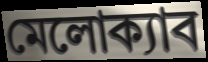
মেলোক্যাব